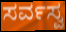
ಸರ್ವಸ್ವ